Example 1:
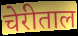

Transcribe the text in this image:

चेरीताल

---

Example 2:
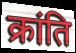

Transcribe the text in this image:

क्रांति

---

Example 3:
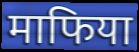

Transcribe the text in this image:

माफिया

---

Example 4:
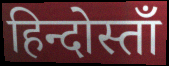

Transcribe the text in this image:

हिन्दोस्ताँ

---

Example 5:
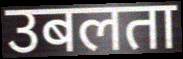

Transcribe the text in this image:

उबलता